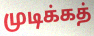
முடிக்கத்